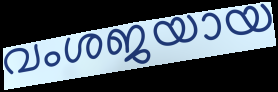
വംശജയായ